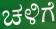
ಚಳಿಗೆ